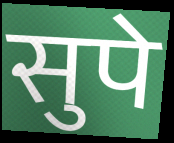
सुपे